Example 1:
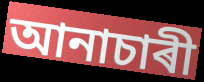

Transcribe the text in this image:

আনাচাৰী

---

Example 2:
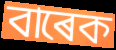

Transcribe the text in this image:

বাৰেক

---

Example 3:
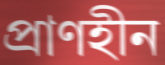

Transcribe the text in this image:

প্ৰাণহীন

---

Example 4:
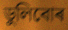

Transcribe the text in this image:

ডুলিবোৰ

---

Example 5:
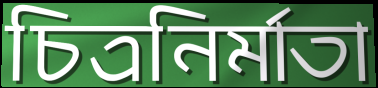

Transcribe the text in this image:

চিত্ৰনিৰ্মাতা